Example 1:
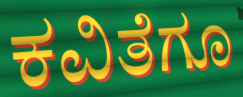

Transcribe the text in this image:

ಕವಿತೆಗೂ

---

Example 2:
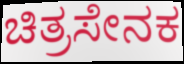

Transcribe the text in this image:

ಚಿತ್ರಸೇನಕ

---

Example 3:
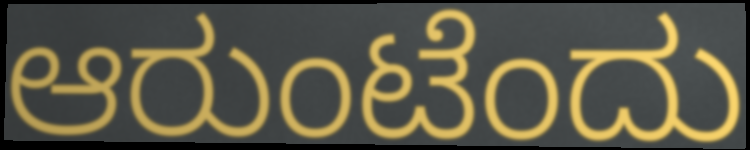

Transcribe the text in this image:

ಆರುಂಟೆಂದು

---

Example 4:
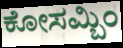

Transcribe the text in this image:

ಕೋಸಮ್ಬಿಂ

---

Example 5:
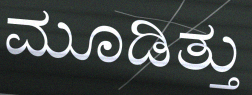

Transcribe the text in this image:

ಮೂಡಿತ್ತು